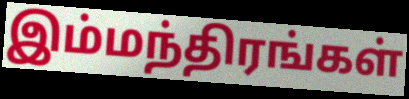
இம்மந்திரங்கள்